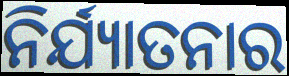
ନିର୍ଯ୍ୟାତନାର